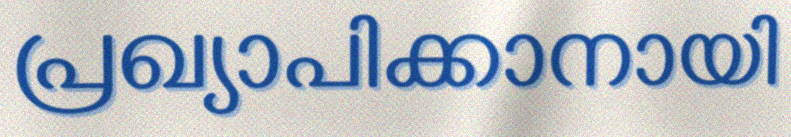
പ്രഖ്യാപിക്കാനായി